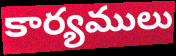
కార్యములు